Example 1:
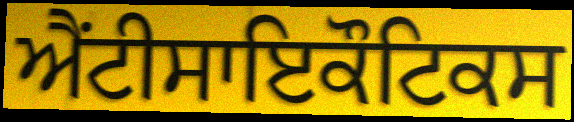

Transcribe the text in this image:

ਐਂਟੀਸਾਇਕੌਟਿਕਸ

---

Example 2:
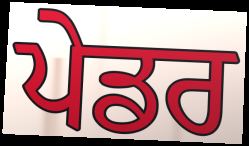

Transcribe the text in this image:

ਪੇਡਰ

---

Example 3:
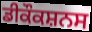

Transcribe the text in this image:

ਡੀਕੌਕਸ਼ਨਸ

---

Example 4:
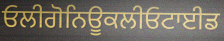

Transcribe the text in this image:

ਓਲੀਗੋਨਿਊਕਲੀਓਟਾਈਡ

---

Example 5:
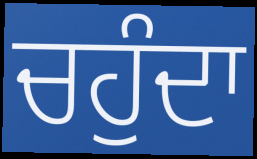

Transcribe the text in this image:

ਚਹੁੰਦਾ